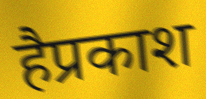
हैप्रकाश